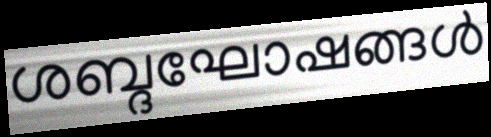
ശബ്ദഘോഷങ്ങൾ